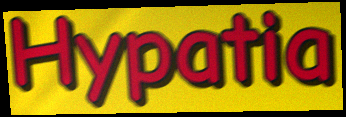
Hypatia